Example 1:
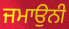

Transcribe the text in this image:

ਜਮਾਉਨੀ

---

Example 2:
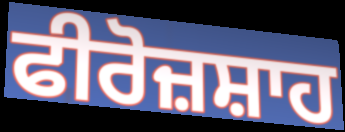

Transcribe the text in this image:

ਫੀਰੋਜ਼ਸ਼ਾਹ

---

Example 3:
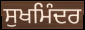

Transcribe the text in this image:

ਸੁਖਮਿੰਦਰ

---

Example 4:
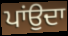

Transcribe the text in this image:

ਪਾਂਉਦਾ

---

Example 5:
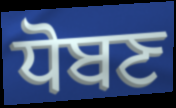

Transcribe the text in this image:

ਧੋਬਣ